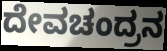
ದೇವಚಂದ್ರನ